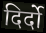
दिर्दो